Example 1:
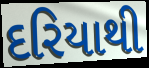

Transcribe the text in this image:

દરિયાથી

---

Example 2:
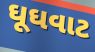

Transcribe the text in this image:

ઘૂઘવાટ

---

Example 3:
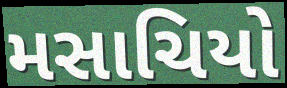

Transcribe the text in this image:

મસાચિયો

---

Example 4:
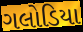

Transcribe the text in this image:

ગલોડિયા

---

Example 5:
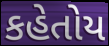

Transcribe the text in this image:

કહેતોય